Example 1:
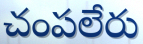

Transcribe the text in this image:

చంపలేరు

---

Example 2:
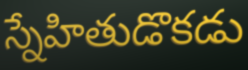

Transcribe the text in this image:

స్నేహితుడొకడు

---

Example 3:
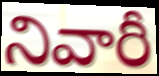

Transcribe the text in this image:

నివారీ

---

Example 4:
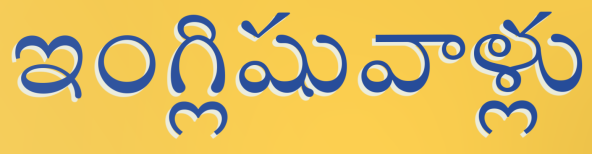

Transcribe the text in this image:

ఇంగ్లిషువాళ్లు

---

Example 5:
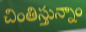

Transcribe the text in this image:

చింతిస్తున్నాం